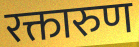
रक्तारुण